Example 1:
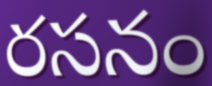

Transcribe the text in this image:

రసనం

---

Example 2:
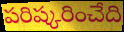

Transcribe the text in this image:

పరిష్కరించేది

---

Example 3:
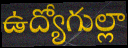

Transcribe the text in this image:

ఉద్యోగుల్లా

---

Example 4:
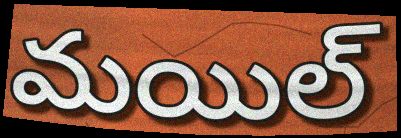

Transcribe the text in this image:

మయిల్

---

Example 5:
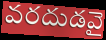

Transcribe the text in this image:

వరదుడవై